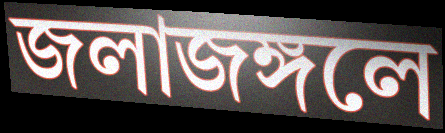
জলাজঙ্গলে